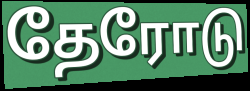
தேரோடு